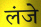
लंजे